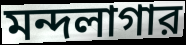
মন্দলাগার